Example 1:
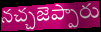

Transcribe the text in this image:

నచ్చజెప్పారు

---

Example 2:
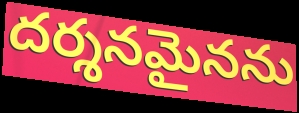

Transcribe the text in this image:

దర్శనమైనను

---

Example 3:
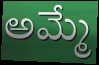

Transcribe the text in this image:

అమ్మే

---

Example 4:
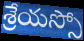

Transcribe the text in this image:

శ్రేయస్సో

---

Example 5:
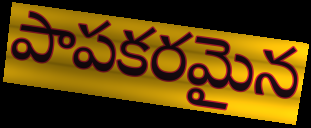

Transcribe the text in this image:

పాపకరమైన